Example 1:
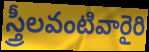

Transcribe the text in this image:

స్త్రీలవంటివారైరి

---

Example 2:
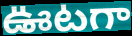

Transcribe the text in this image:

ఊటగా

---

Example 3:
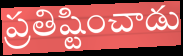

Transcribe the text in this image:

ప్రతిష్టించాడు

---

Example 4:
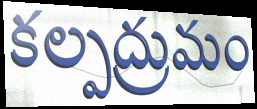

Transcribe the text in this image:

కల్పద్రుమం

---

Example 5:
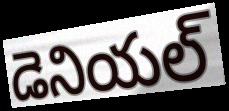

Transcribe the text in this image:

డెనియల్